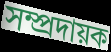
সম্প্ৰদায়ক